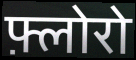
फ़्लोरो